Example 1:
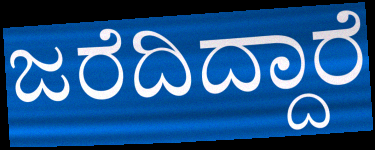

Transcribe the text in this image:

ಜರೆದಿದ್ದಾರೆ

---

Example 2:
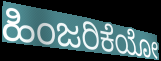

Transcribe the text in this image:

ಹಿಂಜರಿಕೆಯೋ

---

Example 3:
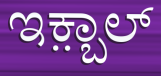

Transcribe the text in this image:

ಇಕ಼್ಬಾಲ್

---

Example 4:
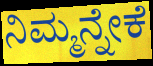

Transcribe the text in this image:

ನಿಮ್ಮನ್ನೇಕೆ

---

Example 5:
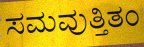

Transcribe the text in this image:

ಸಮವುತ್ತಿತಂ